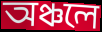
অঞ্চলে